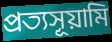
প্রত্যসূয়ামি